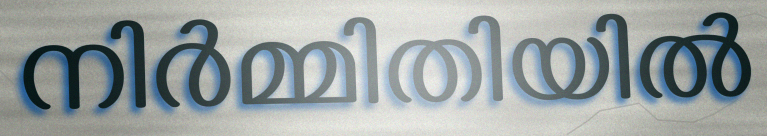
നിർമ്മിതിയിൽ